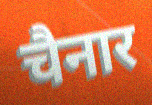
चैनार